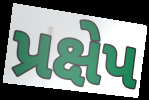
પ્રક્ષેપ